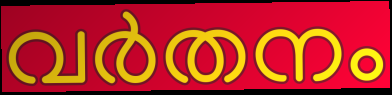
വർതനം